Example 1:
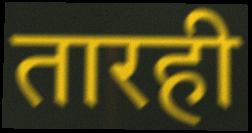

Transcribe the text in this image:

तारही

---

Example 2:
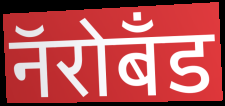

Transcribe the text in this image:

नॅरोबँड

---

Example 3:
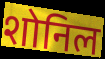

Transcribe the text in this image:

शोनिल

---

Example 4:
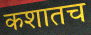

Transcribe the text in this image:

कशातच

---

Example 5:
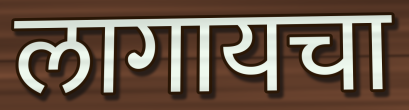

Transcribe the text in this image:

लागायचा